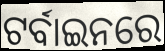
ଟର୍ବାଇନରେ